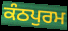
ਕੰਠਪੁਰਮ